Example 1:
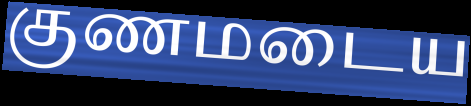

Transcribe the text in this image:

குணமடைய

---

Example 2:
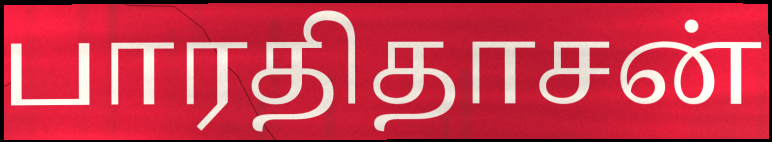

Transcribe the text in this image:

பாரதிதாசன்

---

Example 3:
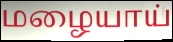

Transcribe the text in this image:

மழையாய்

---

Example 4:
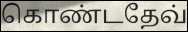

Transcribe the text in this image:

கொண்டதேவ்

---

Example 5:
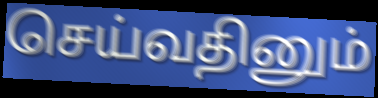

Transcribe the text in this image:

செய்வதினும்